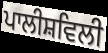
ਪਾਲੀਸ਼ਵਿਲੀ